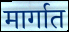
मार्गात